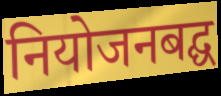
नियोजनबद्घ